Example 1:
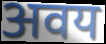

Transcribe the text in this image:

अवय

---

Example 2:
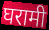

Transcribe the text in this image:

घरामी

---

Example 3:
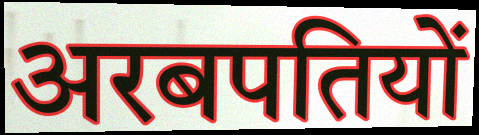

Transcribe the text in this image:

अरबपतियों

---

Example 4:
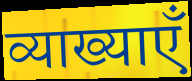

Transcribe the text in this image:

व्याख्याएँ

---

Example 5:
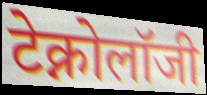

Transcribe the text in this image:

टेक्नोलॉजी